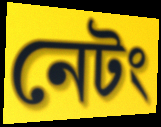
নেটং